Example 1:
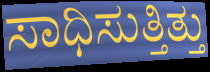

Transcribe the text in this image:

ಸಾಧಿಸುತ್ತಿತ್ತು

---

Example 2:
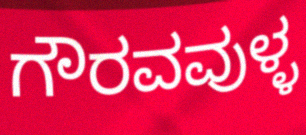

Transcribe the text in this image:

ಗೌರವವುಳ್ಳ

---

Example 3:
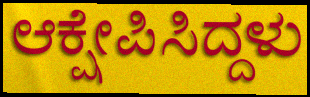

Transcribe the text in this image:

ಆಕ್ಷೇಪಿಸಿದ್ದಳು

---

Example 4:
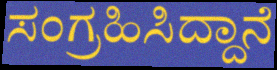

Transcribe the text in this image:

ಸಂಗ್ರಹಿಸಿದ್ದಾನೆ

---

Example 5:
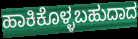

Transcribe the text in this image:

ಹಾಕಿಕೊಳ್ಳಬಹುದಾದ